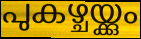
പുകഴ്ചയ്ക്കും